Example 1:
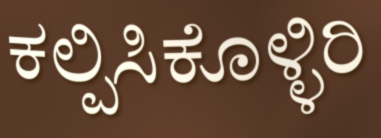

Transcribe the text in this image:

ಕಲ್ಪಿಸಿಕೊಳ್ಳಿರಿ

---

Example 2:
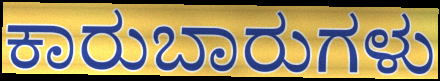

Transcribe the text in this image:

ಕಾರುಬಾರುಗಳು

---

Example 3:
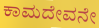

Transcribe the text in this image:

ಕಾಮದೇವನೇ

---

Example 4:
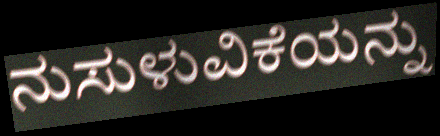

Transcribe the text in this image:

ನುಸುಳುವಿಕೆಯನ್ನು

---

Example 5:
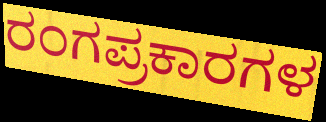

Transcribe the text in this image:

ರಂಗಪ್ರಕಾರಗಳ